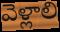
వెళ్లాలి